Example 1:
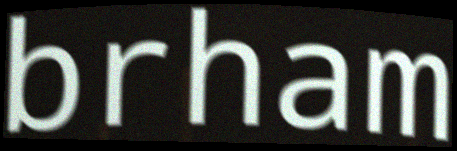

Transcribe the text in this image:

brham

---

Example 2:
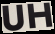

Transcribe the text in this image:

UH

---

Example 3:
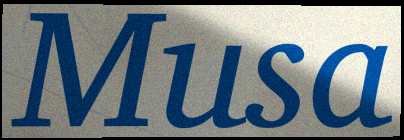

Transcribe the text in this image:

Musa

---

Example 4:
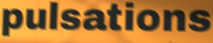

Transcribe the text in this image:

pulsations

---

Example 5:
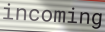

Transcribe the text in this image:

incoming